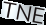
TNE